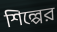
শিল্পের